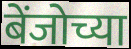
बेंजोच्या